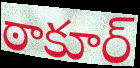
ఠాకూర్